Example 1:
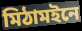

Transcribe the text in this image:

মিঠামইনে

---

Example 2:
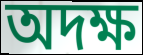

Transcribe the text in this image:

অদক্ষ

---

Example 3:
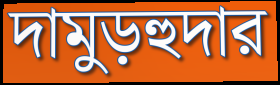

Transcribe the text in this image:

দামুড়হুদার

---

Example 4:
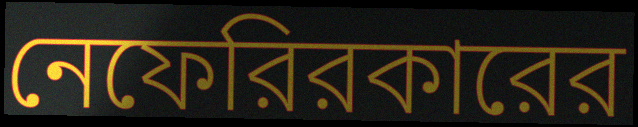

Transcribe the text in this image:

নেফেরিরকারের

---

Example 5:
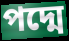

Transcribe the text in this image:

পদ্মে